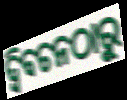
ଦ୍ବିବଚନଠାରୁ